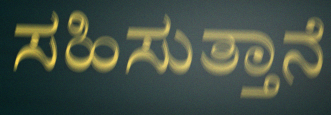
ಸಹಿಸುತ್ತಾನೆ